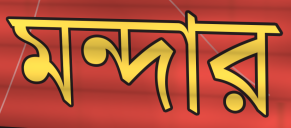
মন্দার